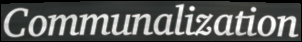
Communalization